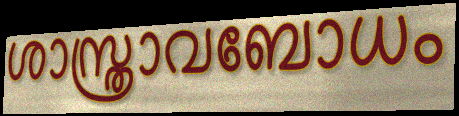
ശാസ്ത്രാവബോധം